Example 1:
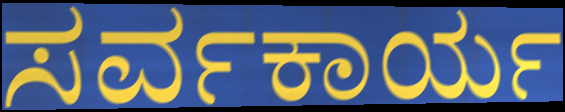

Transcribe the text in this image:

ಸರ್ವಕಾರ್ಯ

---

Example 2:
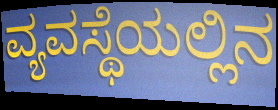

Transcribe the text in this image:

ವ್ಯವಸ್ಥೆಯಲ್ಲಿನ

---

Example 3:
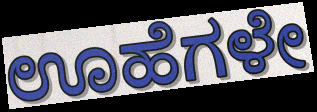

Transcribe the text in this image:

ಊಹೆಗಳೇ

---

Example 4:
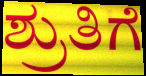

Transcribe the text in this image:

ಶ್ರುತಿಗೆ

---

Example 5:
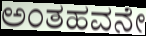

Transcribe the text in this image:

ಅಂತಹವನೇ